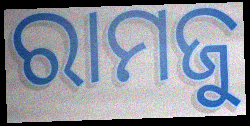
ରାମଜୁ